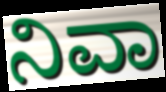
ನಿವಾ